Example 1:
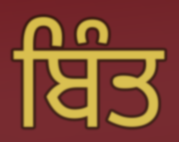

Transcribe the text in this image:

ਬਿੰਤ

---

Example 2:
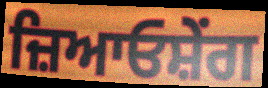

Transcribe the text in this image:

ਜ਼ਿਆਓਸ਼ੇਂਗ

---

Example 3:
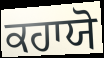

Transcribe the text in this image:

ਕਹਾਯੋ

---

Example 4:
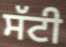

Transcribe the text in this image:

ਸੱਟੀ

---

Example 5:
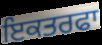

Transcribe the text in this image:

ਇਕਤਰਫਾ